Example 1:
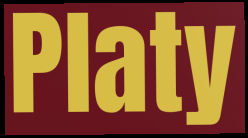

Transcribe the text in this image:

Platy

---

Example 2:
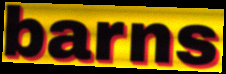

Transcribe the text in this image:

barns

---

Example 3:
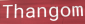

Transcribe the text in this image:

Thangom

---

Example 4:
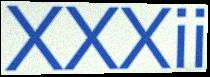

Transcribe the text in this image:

XXXii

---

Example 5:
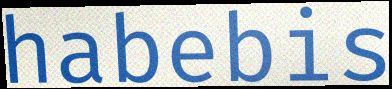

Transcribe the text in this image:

habebis